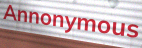
Annonymous